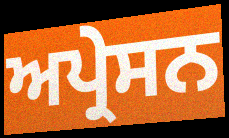
ਅਪ੍ਰੇਸਨ